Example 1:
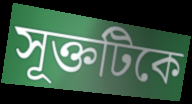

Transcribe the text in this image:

সূক্তটিকে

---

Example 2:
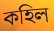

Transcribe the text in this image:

কহিল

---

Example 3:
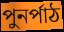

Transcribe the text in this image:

পুনর্পাঠ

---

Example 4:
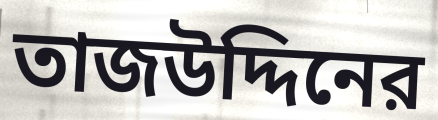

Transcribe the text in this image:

তাজউদ্দিনের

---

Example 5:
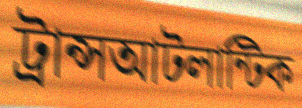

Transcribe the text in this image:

ট্রান্সআটলান্টিক